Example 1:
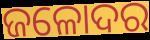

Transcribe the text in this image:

ଜଳୋଦର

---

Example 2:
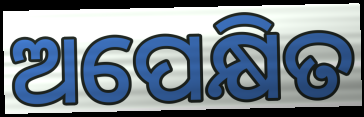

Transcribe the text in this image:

ଅପେକ୍ଷିତ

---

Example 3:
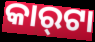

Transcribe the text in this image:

କାର୍‍ଟା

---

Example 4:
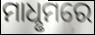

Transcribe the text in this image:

ମାଧୢମରେ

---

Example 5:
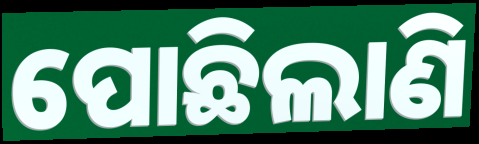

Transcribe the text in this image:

ପୋଛିଲାଣି